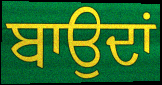
ਬਾਉਦਾਂ